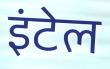
इंटेल